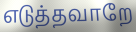
எடுத்தவாறே